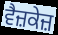
ਵੈਜ਼ਕੇਜ਼